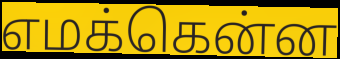
எமக்கென்ன